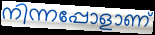
നിന്നപ്പോളാണ്